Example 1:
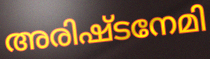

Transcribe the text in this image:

അരിഷ്ടനേമി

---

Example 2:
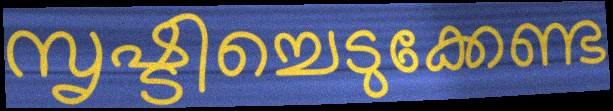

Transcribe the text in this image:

സൃഷ്ടിച്ചെടുക്കേണ്ട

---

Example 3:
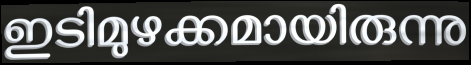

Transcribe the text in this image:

ഇടിമുഴക്കമായിരുന്നു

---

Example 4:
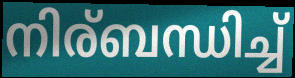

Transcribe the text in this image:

നിര്ബന്ധിച്ച്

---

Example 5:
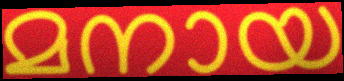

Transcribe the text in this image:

മനായ